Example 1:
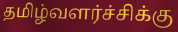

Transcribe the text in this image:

தமிழ்வளர்ச்சிக்கு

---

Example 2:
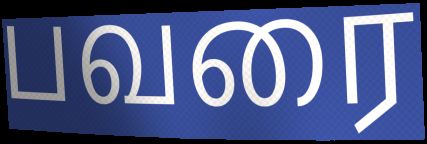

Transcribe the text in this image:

பவரை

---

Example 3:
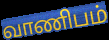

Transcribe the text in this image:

வாணிபம்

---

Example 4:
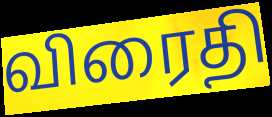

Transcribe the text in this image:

விரைதி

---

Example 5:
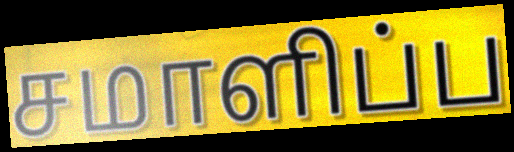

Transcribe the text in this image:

சமாளிப்ப